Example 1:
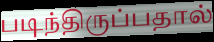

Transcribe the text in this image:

படிந்திருப்பதால்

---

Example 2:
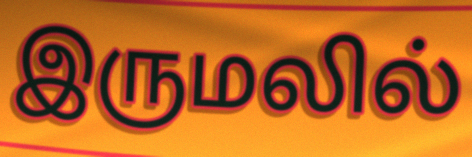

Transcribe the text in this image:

இருமலில்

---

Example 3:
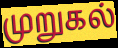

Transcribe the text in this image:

முறுகல்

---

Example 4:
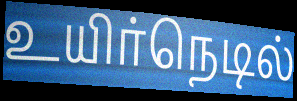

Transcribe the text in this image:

உயிர்நெடில்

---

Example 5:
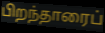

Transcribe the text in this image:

பிறந்தாரைப்